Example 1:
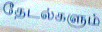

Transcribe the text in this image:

தேடல்களும்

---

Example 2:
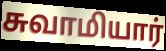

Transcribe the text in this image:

சுவாமியார்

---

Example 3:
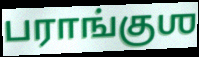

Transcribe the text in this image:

பராங்குஶ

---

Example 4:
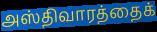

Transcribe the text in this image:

அஸ்திவாரத்தைக்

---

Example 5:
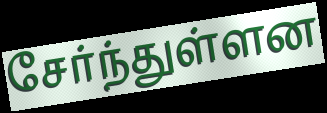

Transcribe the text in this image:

சேர்ந்துள்ளன